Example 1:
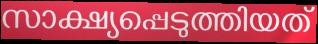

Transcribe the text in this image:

സാക്ഷ്യപ്പെടുത്തിയത്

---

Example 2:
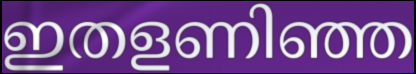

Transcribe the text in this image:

ഇതളണിഞ്ഞ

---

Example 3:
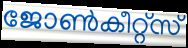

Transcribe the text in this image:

ജോൺകീറ്റ്സ്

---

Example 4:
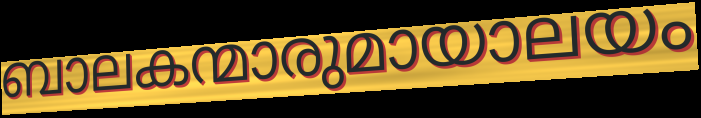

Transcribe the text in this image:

ബാലകന്മാരുമായാലയം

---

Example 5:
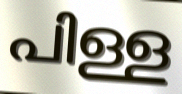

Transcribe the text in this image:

പിള്ള